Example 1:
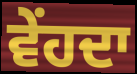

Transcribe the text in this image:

ਵੇਂਹਦਾ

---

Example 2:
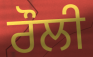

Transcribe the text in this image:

ਰੌਲੀ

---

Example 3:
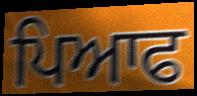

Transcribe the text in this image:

ਪਿਆਫ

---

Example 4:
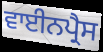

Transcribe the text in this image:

ਵਾਈਨਪ੍ਰੈਸ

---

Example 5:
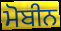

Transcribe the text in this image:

ਮੋਬੀਨ